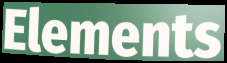
Elements